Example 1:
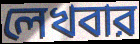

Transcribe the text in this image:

লেখবার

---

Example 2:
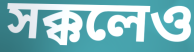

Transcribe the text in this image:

সক্কলেও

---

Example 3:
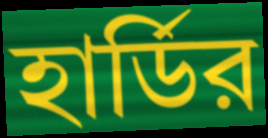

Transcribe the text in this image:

হার্ডির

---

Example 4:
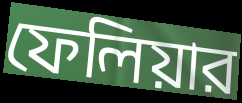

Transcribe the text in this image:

ফেলিয়ার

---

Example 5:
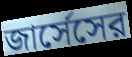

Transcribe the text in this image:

জার্সেসের